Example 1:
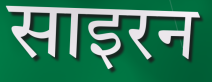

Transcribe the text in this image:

साइरन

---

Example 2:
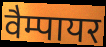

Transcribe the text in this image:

वैम्पायर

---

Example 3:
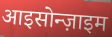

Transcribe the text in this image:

आइसोन्ज़ाइम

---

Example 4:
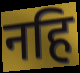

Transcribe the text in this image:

नहि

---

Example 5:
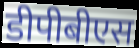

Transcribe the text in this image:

डीपीबीएस